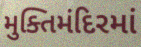
મુક્તિમંદિરમાં